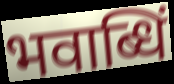
भवाब्धिं